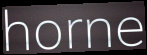
horne